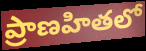
ప్రాణహితలో